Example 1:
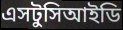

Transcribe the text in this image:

এসটুসিআইডি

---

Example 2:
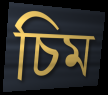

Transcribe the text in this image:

চিম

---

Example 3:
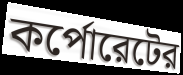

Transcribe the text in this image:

কর্পোরেটের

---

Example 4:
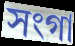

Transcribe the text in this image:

সংগা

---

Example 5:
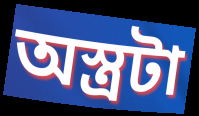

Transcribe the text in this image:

অস্ত্রটা